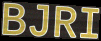
BJRI